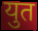
युत